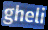
gheli